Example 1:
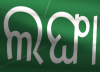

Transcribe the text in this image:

ଲଙ୍ଘା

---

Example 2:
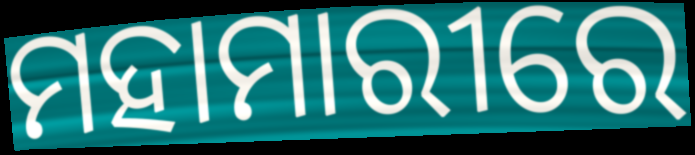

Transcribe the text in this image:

ମହାମାରୀରେ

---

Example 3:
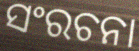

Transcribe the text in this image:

ସଂରଚନା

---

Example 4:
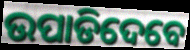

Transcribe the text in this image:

ଉପାଡିଦେବେ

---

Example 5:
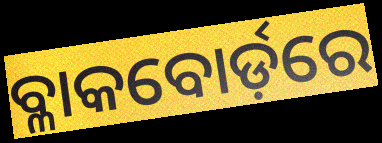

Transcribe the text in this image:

ବ୍ଳାକବୋର୍ଡ଼ରେ